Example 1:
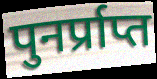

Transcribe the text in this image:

पुनर्प्राप्त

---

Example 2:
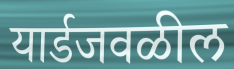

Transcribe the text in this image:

यार्डजवळील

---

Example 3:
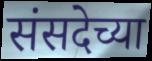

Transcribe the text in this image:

संसदेच्या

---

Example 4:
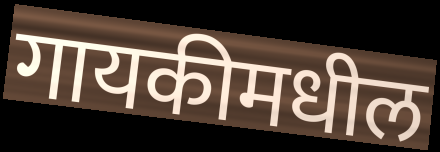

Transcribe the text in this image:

गायकीमधील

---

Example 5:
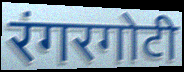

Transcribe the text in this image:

रंगरगोटी